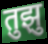
तुझु